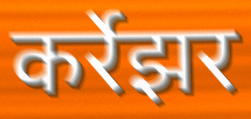
कर्रेझर